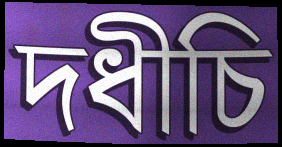
দধীচি